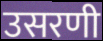
उसरणी